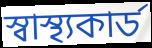
স্বাস্থ্যকার্ড